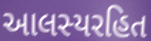
આલસ્યરહિત